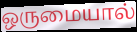
ஒருமையால்